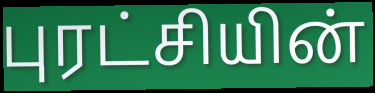
புரட்சியின்